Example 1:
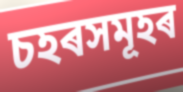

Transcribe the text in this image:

চহৰসমূহৰ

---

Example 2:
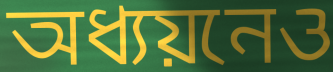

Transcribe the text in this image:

অধ্যয়নেও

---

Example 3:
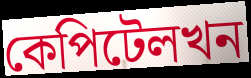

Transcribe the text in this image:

কেপিটেলখন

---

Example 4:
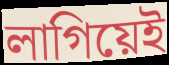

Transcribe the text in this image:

লাগিয়েই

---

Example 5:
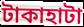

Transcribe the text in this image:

টাকাহাটা